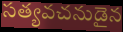
సత్యవచనుడైన